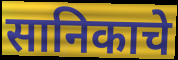
सानिकाचे